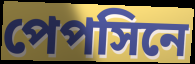
পেপসিনে